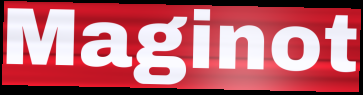
Maginot